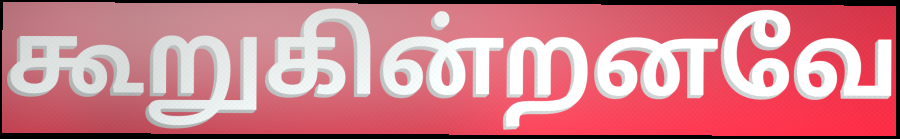
கூறுகின்றனவே